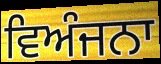
ਵਿਅੰਜਨਾ